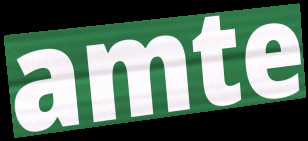
amte